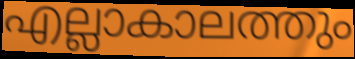
എല്ലാകാലത്തും